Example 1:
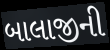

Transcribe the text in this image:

બાલાજીની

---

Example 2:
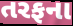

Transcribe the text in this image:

તરફના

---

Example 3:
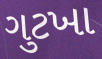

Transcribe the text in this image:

ગુટખા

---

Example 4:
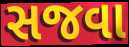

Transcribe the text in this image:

સજવા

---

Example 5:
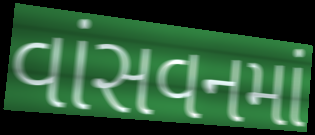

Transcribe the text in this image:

વાંસવનમાં